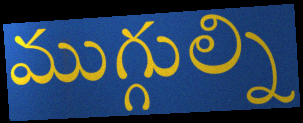
ముగ్గుల్ని